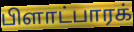
பிளாட்பாரக்